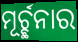
ମୂର୍ଚ୍ଛନାର